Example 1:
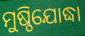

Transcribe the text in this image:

ମୁଷ୍ଠିଯୋଦ୍ଧା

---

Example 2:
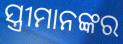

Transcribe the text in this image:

ସ୍ତ୍ରୀମାନଙ୍କର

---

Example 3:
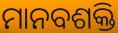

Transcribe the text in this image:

ମାନବଶକ୍ତି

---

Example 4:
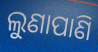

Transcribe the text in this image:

ଲୁଣାପାଣି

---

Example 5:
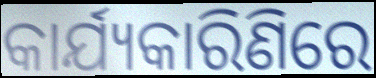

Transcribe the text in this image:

କାର୍ଯ୍ୟକାରିଣିରେ